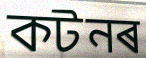
কটনৰ